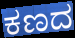
ಕಣದ